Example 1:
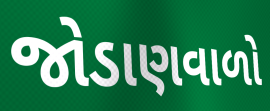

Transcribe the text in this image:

જોડાણવાળો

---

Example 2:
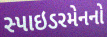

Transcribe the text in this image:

સ્પાઇડરમેનનો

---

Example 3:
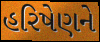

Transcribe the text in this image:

હરિષેણને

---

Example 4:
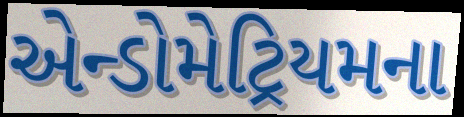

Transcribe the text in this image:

એન્ડોમેટ્રિયમના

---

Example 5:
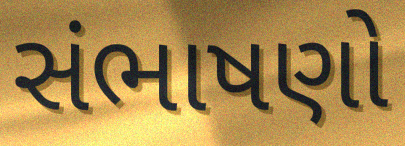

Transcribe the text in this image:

સંભાષણો